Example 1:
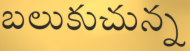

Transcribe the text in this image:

బలుకుచున్న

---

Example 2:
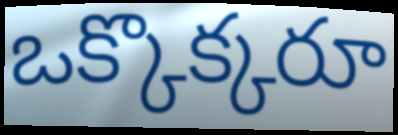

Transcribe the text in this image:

ఒక్కొక్కరూ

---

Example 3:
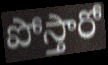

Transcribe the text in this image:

పోస్తారో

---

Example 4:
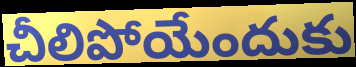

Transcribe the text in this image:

చీలిపోయేందుకు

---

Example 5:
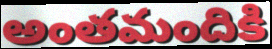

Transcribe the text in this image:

అంతమందికి